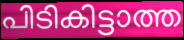
പിടികിട്ടാത്ത